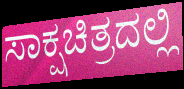
ಸಾಕ್ಷಚಿತ್ರದಲ್ಲಿ